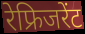
रेफ्रिजरेंट